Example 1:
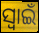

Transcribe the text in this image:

ସ୍ଵାଇଁ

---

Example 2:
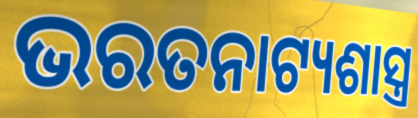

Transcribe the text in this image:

ଭରତନାଟ୍ୟଶାସ୍ତ୍ର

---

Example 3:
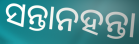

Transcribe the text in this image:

ସନ୍ତାନହନ୍ତା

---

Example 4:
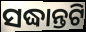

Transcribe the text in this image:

ସଦ୍ଧାନ୍ତଟି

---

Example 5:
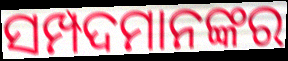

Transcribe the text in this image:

ସମ୍ପଦମାନଙ୍କର